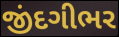
જીંદગીભર